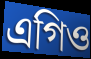
এগিও